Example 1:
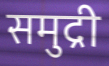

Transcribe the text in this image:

समुद्री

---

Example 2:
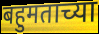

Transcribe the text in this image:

बहुमताच्या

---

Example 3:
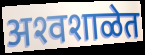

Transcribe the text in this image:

अश्वशाळेत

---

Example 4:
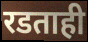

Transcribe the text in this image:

रडताही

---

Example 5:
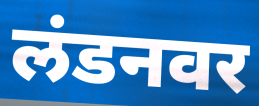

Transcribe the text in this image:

लंडनवर